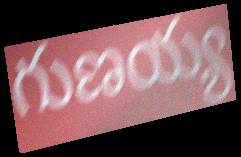
గుణయ్య